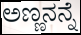
ಅಣ್ಣನನ್ನೆ